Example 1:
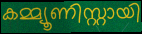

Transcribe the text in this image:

കമ്മ്യൂണിസ്റ്റായി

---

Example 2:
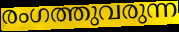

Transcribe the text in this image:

രംഗത്തുവരുന്ന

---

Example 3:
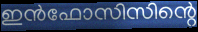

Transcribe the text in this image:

ഇൻഫോസിസിന്റെ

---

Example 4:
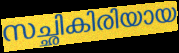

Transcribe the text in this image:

സച്ഛികിരിയായ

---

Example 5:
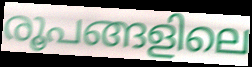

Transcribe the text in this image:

രൂപങ്ങളിലെ